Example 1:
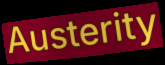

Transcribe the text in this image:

Austerity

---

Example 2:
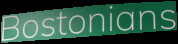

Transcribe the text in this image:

Bostonians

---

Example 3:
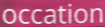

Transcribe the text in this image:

occation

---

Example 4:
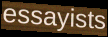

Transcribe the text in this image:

essayists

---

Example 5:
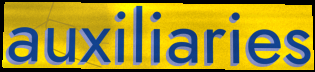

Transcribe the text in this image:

auxiliaries